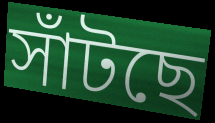
সাঁটছে